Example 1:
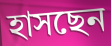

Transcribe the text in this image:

হাসছেন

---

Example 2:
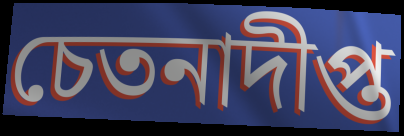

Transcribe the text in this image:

চেতনাদীপ্ত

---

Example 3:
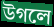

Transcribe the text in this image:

উগলে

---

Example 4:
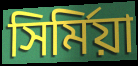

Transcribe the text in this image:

সির্মিয়া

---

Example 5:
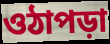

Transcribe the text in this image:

ওঠাপড়া